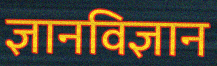
ज्ञानविज्ञान